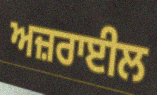
ਅਜ਼ਰਾਈਲ